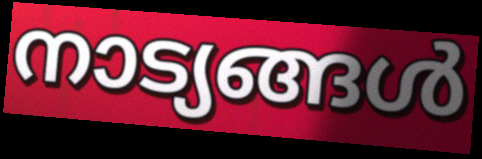
നാട്യങ്ങൾ